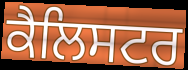
ਕੈਲਿਸਟਰ